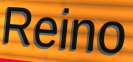
Reino